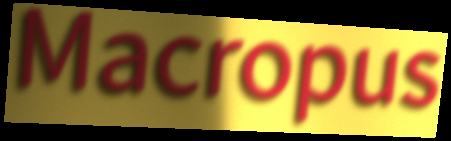
Macropus